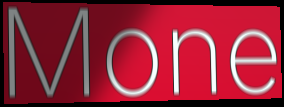
Mone